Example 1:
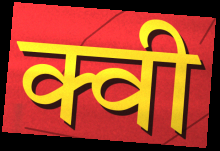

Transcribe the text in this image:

क्वी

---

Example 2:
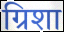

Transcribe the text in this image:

ग्रिशा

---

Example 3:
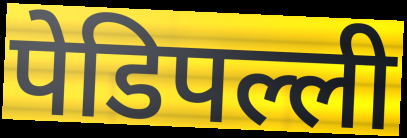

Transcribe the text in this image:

पेडिपल्ली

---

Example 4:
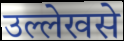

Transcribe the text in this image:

उल्लेखसे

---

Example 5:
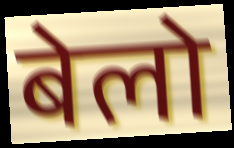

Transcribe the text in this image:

बेलो